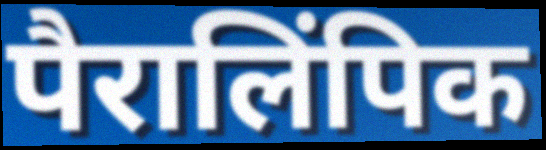
पैरालिंपिक